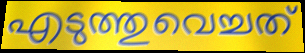
എടുത്തുവെച്ചത്